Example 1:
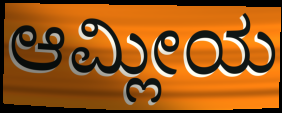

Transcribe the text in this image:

ಆಮ್ಲೀಯ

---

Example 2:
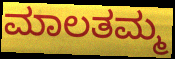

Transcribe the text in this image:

ಮಾಲತಮ್ಮ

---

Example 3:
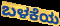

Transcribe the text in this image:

ಬಳಕೆಯ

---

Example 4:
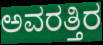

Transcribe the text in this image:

ಅವರತ್ತಿರ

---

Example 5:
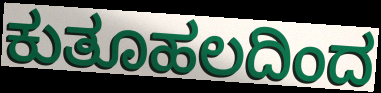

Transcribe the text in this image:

ಕುತೂಹಲದಿಂದ